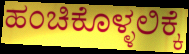
ಹಂಚಿಕೊಳ್ಳಲಿಕ್ಕೆ